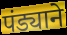
पंड्याने